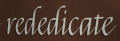
rededicate